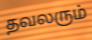
தவலரும்